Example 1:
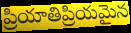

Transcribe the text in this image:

ప్రియాతిప్రియమైన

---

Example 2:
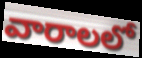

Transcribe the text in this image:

వారాలలో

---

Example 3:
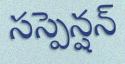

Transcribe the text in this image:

సస్పెన్షన్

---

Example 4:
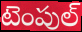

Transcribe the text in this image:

టెంపుల్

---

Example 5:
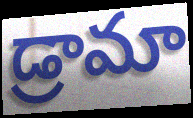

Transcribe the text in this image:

డ్రామా